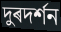
দুৰদৰ্শন